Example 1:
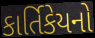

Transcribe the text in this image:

કાર્તિકેયનો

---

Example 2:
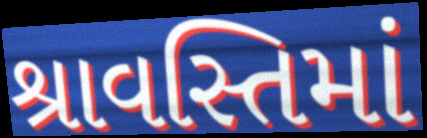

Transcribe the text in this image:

શ્રાવસ્તિમાં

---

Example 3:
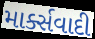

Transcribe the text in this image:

માર્ક્સવાદી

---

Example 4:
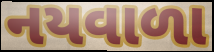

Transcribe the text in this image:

નયવાળા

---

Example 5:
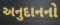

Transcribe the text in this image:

અનુદાનનો